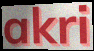
akri